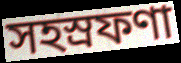
সহস্রফণা